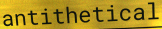
antithetical